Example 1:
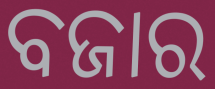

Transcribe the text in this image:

ବଜାର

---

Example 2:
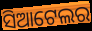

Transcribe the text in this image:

ସିଆଟେଲର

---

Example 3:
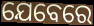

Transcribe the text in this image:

ଯେବେରେ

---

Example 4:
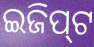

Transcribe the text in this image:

ଇଜିପ୍‍ଟ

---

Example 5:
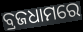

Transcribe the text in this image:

ବ୍ରଜଧାମରେ